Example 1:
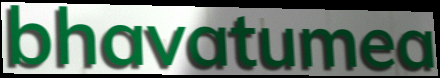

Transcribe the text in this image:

bhavatumea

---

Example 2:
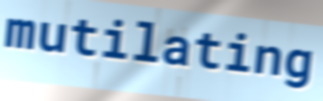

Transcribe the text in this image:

mutilating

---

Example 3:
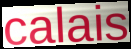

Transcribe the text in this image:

calais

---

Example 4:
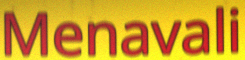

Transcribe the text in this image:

Menavali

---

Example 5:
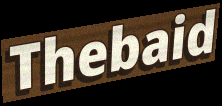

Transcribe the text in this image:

Thebaid